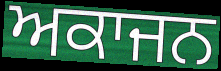
ਅਕਾਜਨ